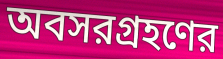
অবসরগ্রহণের